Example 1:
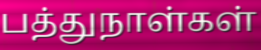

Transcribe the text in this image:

பத்துநாள்கள்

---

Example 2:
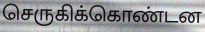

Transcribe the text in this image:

செருகிக்கொண்டன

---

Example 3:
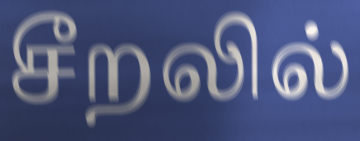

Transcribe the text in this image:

சீறலில்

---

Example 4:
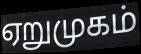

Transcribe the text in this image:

ஏறுமுகம்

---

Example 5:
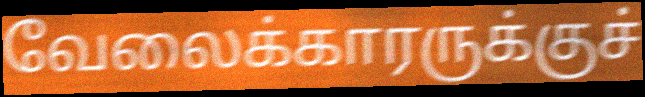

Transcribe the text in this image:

வேலைக்காரருக்குச்